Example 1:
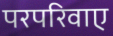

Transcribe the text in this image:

परपरिवाए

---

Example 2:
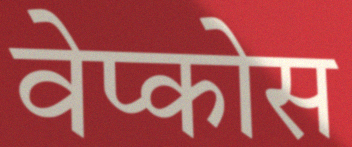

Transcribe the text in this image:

वेप्कोस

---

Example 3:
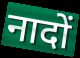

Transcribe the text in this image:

नादों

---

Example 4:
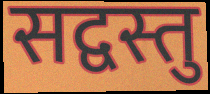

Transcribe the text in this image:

सद्वस्तु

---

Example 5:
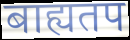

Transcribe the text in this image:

बाह्यतप